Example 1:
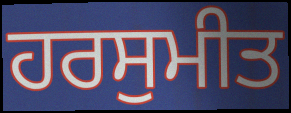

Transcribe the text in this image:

ਹਰਸੁਮੀਤ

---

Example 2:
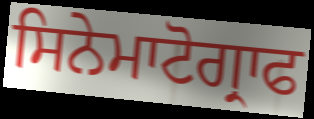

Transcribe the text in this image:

ਸਿਨੇਮਾਟੋਗ੍ਰਾਫ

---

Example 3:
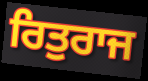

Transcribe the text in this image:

ਰਿਤੁਰਾਜ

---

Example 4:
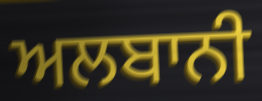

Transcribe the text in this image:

ਅਲਬਾਨੀ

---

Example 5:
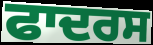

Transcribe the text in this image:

ਫਾਦਰਸ